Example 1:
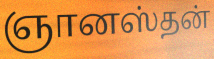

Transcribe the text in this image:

ஞானஸ்தன்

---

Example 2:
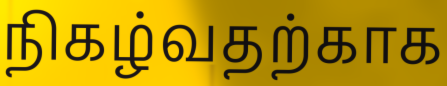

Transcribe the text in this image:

நிகழ்வதற்காக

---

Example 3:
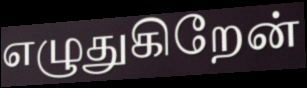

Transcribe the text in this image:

எழுதுகிறேன்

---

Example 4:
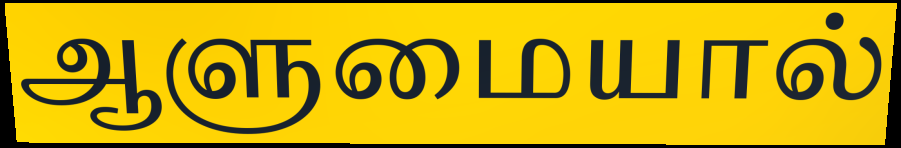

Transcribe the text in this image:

ஆளுமையால்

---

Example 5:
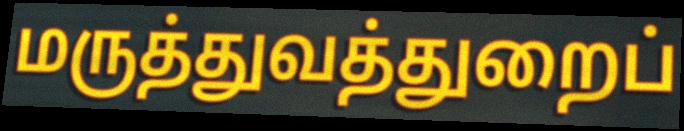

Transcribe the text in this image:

மருத்துவத்துறைப்